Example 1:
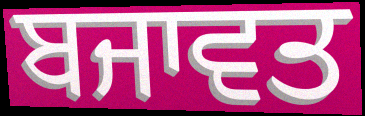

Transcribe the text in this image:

ਬਜਾਵਤ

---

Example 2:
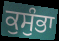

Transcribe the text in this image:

ਕੁਸੁੰਭਾ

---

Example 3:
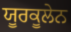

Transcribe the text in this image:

ਯੂਰਕੂਲੇਨ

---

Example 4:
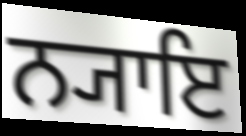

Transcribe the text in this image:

ਨ੍ਯਾਇ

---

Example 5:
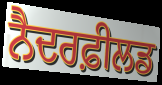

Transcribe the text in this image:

ਨੈਦਰਫ਼ੀਲਡ